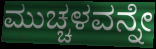
ಮುಚ್ಚಳವನ್ನೇ